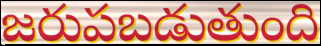
జరుపబడుతుంది